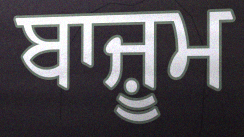
ਬਾਜ਼ੂਮ